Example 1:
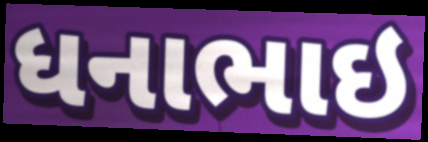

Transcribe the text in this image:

ધનાભાઇ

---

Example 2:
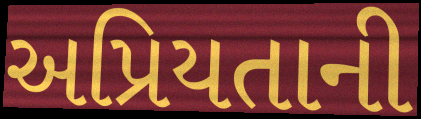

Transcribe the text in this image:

અપ્રિયતાની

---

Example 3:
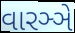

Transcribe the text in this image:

વારઞ્ઞે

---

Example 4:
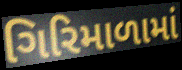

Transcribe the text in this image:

ગિરિમાળામાં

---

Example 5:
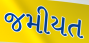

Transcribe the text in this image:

જમીયત